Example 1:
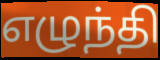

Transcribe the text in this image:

எழுந்தி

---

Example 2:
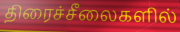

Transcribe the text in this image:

திரைச்சீலைகளில்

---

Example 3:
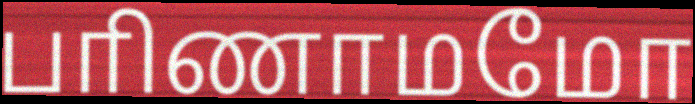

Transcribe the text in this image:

பரிணாமமோ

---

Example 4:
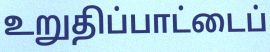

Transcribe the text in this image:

உறுதிப்பாட்டைப்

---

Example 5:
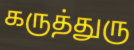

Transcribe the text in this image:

கருத்துரு